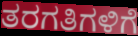
ತರಗತಿಗಳಿಗೆ